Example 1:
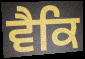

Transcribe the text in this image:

ਵੈਕਿ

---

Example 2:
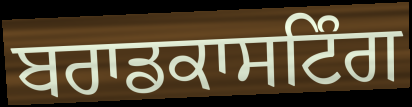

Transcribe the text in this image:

ਬਰਾਡਕਾਸਟਿੰਗ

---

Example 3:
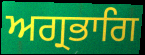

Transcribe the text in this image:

ਅਗ੍ਰਭਾਗਿ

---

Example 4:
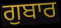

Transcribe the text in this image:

ਗੁਬਾਰ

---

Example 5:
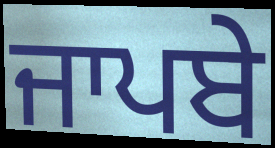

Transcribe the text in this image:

ਜਾਪਬੇ